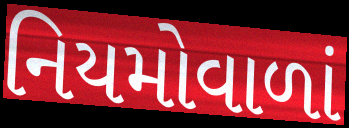
નિયમોવાળાં